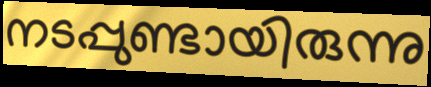
നടപ്പുണ്ടായിരുന്നു